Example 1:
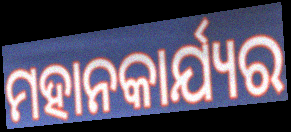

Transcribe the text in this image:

ମହାନକାର୍ଯ୍ୟର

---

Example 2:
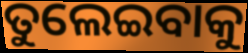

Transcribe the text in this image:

ତୁଲେଇବାକୁ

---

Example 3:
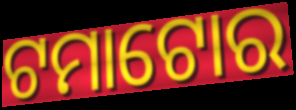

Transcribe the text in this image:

ଟମାଟୋର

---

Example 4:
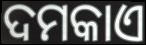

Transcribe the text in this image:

ଦମକାଏ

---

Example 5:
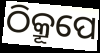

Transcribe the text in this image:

ଠିକ୍ରୂପେ